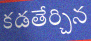
కడతేర్చిన